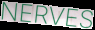
NERVES